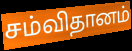
சம்விதானம்